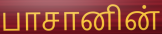
பாசானின்